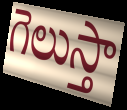
గెలుస్తా